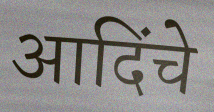
आदिंचे